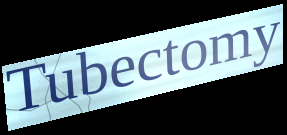
Tubectomy